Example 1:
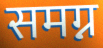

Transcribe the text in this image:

समग्न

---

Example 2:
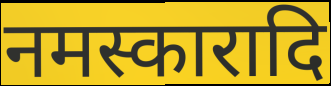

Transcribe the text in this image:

नमस्कारादि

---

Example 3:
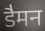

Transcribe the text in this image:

डैमन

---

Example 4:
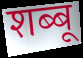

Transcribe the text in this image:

शब्बू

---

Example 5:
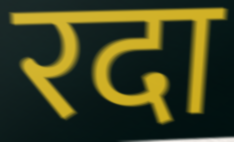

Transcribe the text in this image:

रदा